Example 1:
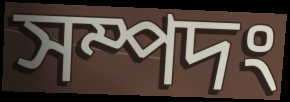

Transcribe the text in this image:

সম্পদং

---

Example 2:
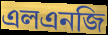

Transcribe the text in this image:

এলএনজি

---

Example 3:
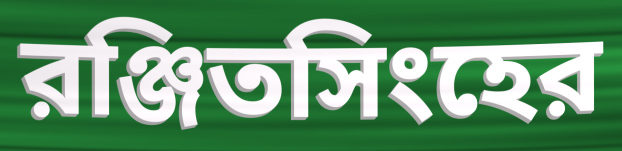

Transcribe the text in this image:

রঞ্জিতসিংহের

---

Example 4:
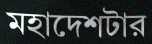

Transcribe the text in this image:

মহাদেশটার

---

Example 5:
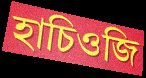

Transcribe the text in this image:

হাচিওজি